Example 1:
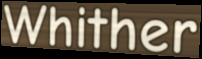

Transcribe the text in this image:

Whither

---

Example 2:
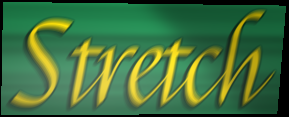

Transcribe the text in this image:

Stretch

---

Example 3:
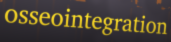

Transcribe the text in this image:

osseointegration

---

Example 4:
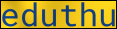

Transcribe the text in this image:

eduthu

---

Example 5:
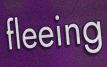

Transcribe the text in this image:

fleeing